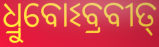
ଧ୍ରୁବୋଽବ୍ରବୀତ୍